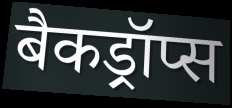
बैकड्रॉप्स